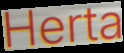
Herta